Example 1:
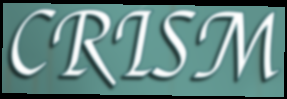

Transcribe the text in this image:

CRISM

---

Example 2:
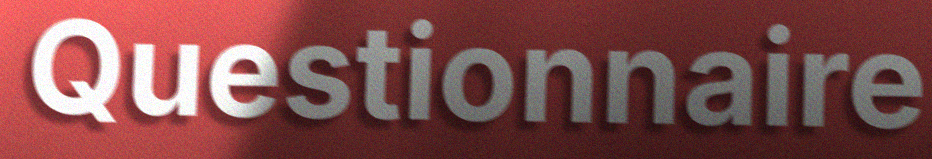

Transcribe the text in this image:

Questionnaire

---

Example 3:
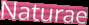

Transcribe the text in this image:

Naturae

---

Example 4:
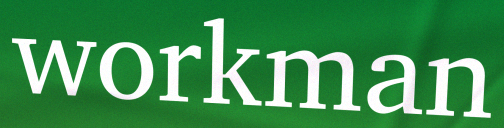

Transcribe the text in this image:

workman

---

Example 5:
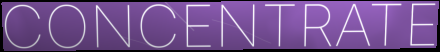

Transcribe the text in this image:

CONCENTRATE